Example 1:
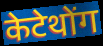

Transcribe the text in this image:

केटेथोंग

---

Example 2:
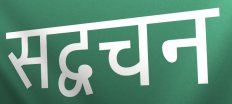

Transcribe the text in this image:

सद्वचन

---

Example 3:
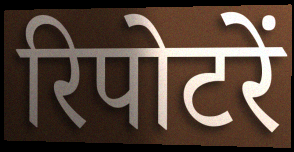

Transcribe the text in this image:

रिपोटरें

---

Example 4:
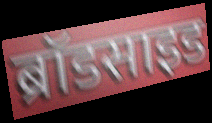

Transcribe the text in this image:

ब्रॉडसाइड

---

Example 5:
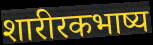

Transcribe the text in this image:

शारीरकभाष्य